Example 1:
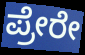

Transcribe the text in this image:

ಪ್ರೇರೇ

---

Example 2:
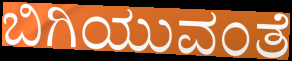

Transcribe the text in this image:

ಬಿಗಿಯುವಂತೆ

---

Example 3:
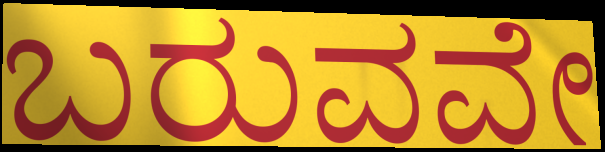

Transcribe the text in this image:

ಬರುವವೇ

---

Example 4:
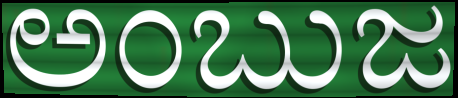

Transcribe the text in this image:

ಅಂಬುಜ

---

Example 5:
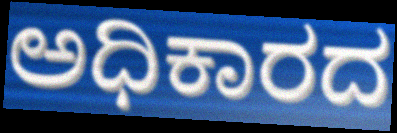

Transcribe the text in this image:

ಅಧಿಕಾರದ